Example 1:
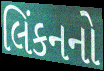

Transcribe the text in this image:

લિંકનનો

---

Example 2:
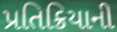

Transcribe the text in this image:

પ્રતિક્રિયાની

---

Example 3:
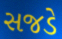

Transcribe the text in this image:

સજડે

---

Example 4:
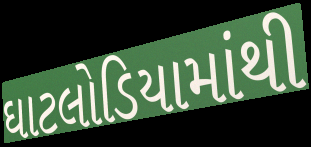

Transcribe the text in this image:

ઘાટલોડિયામાંથી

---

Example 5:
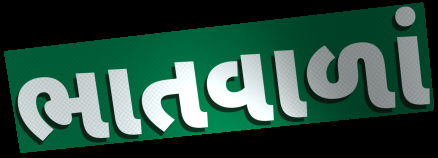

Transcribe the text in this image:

ભાતવાળાં